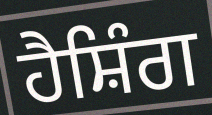
ਹੈਸ਼ਿੰਗ